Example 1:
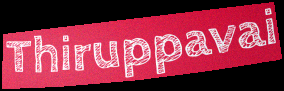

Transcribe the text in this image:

Thiruppavai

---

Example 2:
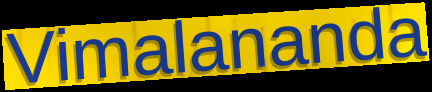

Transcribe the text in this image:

Vimalananda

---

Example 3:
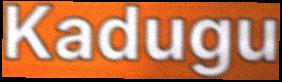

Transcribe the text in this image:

Kadugu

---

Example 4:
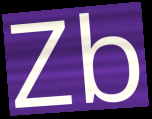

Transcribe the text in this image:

Zb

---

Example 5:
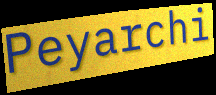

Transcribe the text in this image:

Peyarchi